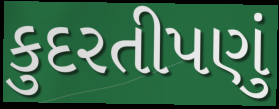
કુદરતીપણું